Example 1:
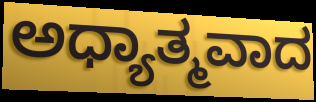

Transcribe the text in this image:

ಅಧ್ಯಾತ್ಮವಾದ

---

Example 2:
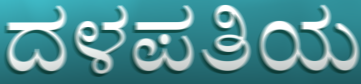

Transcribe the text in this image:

ದಳಪತಿಯ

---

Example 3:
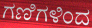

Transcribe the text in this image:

ಗಣಿಗಳಿಂದ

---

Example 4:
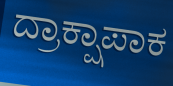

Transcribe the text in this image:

ದ್ರಾಕ್ಷಾಪಾಕ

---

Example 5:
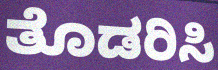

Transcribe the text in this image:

ತೊಡರಿಸಿ